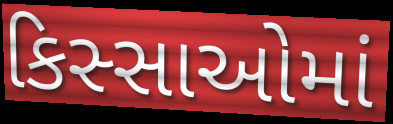
કિસ્સાઓમાં